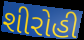
શીરોહી